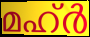
മഹ്ർ